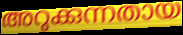
അറുക്കുന്നതായ